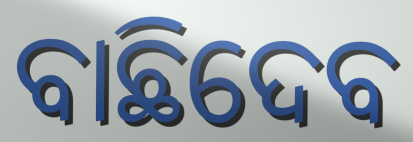
ବାଛିଦେବ